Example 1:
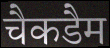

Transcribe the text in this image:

चैकडैम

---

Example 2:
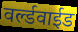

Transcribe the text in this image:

वर्ल्डवाईड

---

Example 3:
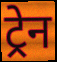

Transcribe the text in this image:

ट्रेन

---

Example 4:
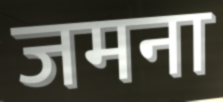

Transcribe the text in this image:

जमना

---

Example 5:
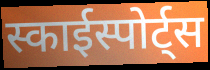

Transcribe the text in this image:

स्काईस्पोर्ट्स